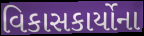
વિકાસકાર્યોના